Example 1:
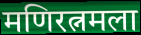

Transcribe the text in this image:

मणिरत्नमला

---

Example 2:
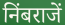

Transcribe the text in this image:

निंबराजें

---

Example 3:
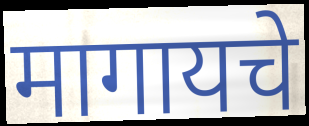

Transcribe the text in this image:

मागायचे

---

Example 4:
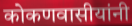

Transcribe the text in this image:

कोकणवासीयांनी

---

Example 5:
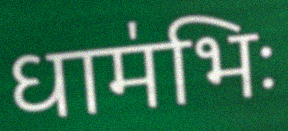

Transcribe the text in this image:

धाम॑भिः